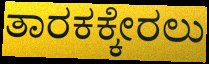
ತಾರಕಕ್ಕೇರಲು